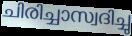
ചിരിച്ചാസ്വദിച്ചു